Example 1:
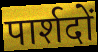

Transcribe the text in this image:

पार्शदों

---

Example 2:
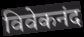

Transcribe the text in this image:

विवेकनंद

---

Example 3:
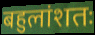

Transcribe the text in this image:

बहुलांशतः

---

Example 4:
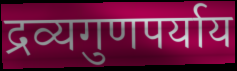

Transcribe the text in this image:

द्रव्यगुणपर्याय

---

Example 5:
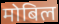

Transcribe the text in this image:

मोबिल